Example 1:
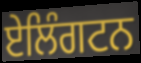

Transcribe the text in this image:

ਏਲਿੰਗਟਨ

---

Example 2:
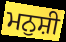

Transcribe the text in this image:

ਮਨੁਸ਼ੀ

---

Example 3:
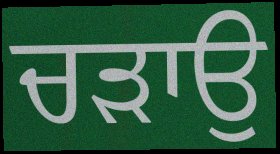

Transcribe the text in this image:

ਚੜਾਉ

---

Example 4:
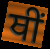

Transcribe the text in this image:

ਥੀਂ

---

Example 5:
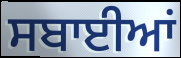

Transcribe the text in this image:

ਸਬਾਈਆਂ